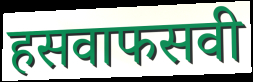
हसवाफसवी